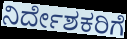
ನಿರ್ದೇಶಕರಿಗೆ